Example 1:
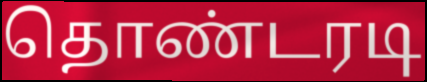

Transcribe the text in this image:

தொண்டரடி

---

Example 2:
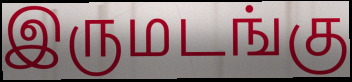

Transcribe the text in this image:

இருமடங்கு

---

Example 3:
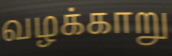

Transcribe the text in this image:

வழக்காறு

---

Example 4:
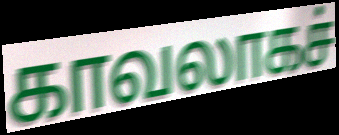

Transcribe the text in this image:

காவலாகச்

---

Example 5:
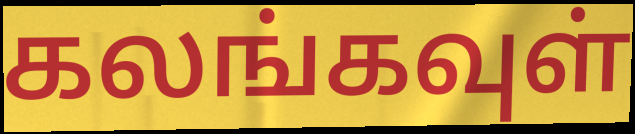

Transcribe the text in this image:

கலங்கவுள்